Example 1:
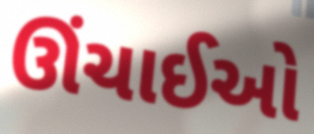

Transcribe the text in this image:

ઊંચાઈઓ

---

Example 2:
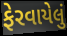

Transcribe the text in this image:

ફેરવાયેલું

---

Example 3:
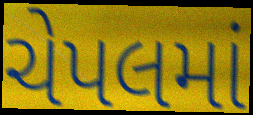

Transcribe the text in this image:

ચેપલમાં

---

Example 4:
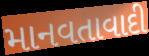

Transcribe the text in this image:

માનવતાવાદી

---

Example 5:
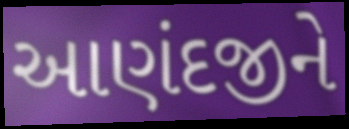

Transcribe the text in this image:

આણંદજીને